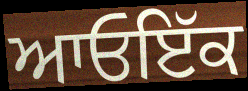
ਆਓਇੱਕ